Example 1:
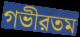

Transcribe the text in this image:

গভীরতম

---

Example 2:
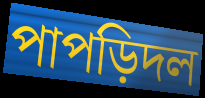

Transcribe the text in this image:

পাপড়িদল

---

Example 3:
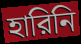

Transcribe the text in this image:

হারিনি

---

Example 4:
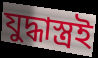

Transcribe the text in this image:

যুদ্ধাস্ত্রই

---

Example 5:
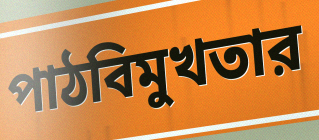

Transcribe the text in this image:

পাঠবিমুখতার